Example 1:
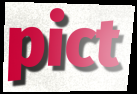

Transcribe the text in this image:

pict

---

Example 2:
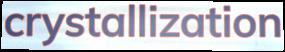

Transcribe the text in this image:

crystallization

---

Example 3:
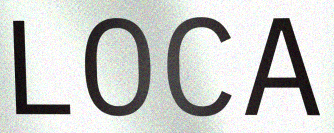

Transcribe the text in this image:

LOCA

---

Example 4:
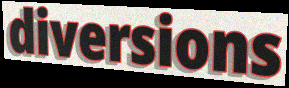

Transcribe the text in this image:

diversions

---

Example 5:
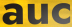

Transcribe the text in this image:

auc